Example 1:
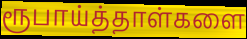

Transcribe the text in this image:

ரூபாய்த்தாள்களை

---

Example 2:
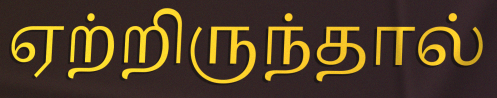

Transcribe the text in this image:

ஏற்றிருந்தால்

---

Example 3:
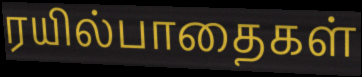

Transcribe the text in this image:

ரயில்பாதைகள்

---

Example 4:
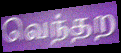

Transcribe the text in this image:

வெந்தற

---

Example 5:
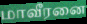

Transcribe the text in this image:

மாவீரனை